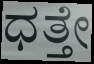
ಧತ್ತೇ